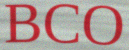
BCO